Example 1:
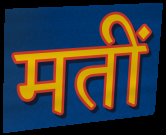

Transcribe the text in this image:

मतीं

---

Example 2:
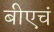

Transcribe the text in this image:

बीएचं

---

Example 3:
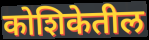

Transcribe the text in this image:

कोशिकेतील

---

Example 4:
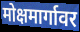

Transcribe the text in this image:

मोक्षमार्गावर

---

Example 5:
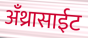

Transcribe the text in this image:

अँथ्रासाईट